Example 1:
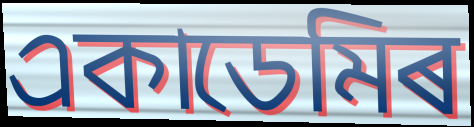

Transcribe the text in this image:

একাডেমিৰ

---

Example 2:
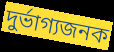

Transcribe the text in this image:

দুৰ্ভাগ্যজনক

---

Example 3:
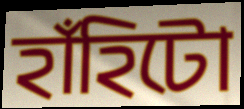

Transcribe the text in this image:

হাঁহিটো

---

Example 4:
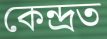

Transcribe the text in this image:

কেন্দ্ৰত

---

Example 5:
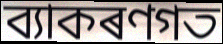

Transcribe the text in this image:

ব্যাকৰণগত